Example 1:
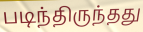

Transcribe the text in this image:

படிந்திருந்தது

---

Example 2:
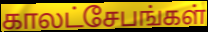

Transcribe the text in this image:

காலட்சேபங்கள்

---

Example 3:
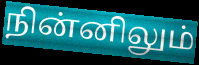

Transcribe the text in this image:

நின்னிலும்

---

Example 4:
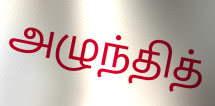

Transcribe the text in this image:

அழுந்தித்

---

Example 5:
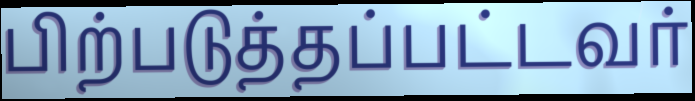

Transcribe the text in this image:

பிற்படுத்தப்பட்டவர்